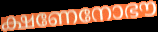
ക്ഷണേനോഭൗ